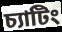
চ্যাটিং